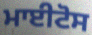
ਮਾਈਟੋਸ